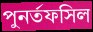
পুনর্তফসিল